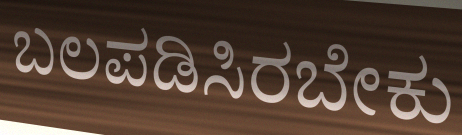
ಬಲಪಡಿಸಿರಬೇಕು